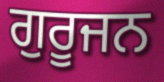
ਗੁਰੂਜਨ